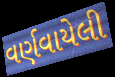
વર્ણવાયેલી